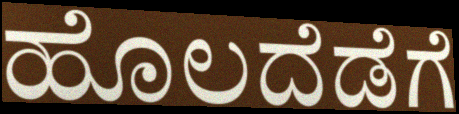
ಹೊಲದೆಡೆಗೆ